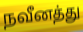
நவீனத்து